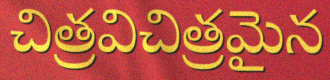
చిత్రవిచిత్రమైన